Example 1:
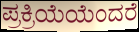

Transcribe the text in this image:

ಪ್ರಕ್ರಿಯೆಯೆಂದರೆ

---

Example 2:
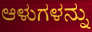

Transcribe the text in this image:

ಆಳುಗಳನ್ನು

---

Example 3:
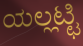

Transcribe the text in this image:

ಯಲ್ಲಟ್ಟಿ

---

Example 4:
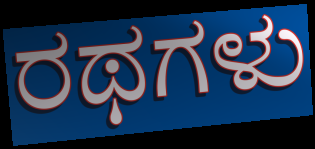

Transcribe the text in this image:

ರಥಗಳು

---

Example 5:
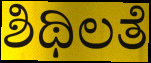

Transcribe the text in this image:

ಶಿಥಿಲತೆ